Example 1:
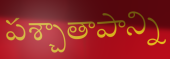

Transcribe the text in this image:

పశ్చాతాపాన్ని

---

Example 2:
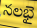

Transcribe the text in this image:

నలభై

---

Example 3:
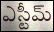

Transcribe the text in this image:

ఎస్టీమ్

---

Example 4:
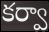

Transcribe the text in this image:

కర్వా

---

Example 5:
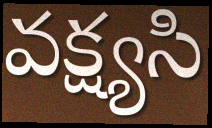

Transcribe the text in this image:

వక్ష్యసి